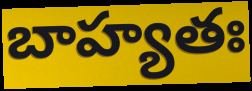
బాహ్యతః